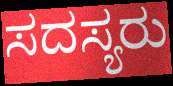
ಸದಸ್ಯರು